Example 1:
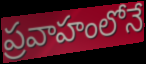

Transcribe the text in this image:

ప్రవాహంలోనే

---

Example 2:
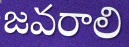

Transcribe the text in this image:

జవరాలి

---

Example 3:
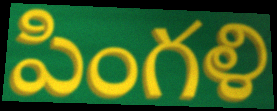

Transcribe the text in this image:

పింగళి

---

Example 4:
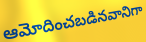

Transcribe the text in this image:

ఆమోదించబడినవానిగా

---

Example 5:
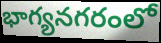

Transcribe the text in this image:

భాగ్యనగరంలో